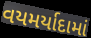
વયમર્યાદામાં